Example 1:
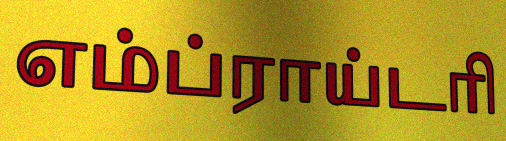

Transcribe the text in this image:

எம்ப்ராய்டரி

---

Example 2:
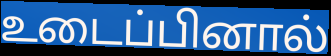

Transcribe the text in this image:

உடைப்பினால்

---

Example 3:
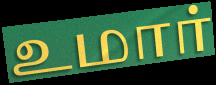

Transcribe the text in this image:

உமார்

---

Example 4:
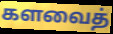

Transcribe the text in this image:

களவைத்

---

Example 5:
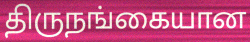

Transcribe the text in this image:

திருநங்கையான